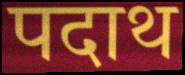
पदाथ